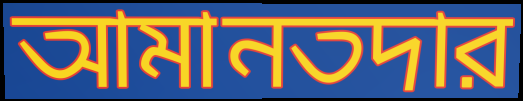
আমানতদার